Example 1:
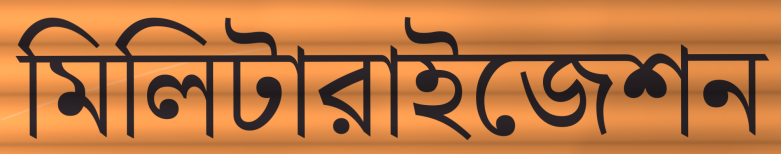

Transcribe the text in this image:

মিলিটারাইজেশন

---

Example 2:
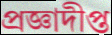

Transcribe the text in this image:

প্রজ্ঞাদীপ্ত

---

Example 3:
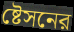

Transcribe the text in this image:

ষ্টেসনের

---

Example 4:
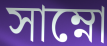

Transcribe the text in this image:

সাম্নো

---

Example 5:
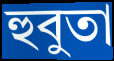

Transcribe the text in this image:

হুবুতা